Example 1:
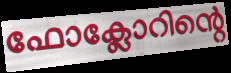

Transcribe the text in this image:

ഫോക്ലോറിന്റെ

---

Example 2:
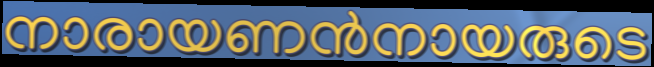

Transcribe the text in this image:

നാരായണൻനായരുടെ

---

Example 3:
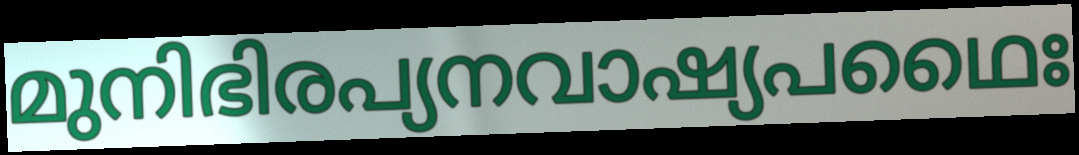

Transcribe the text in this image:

മുനിഭിരപ്യനവാഷ്യപഥൈഃ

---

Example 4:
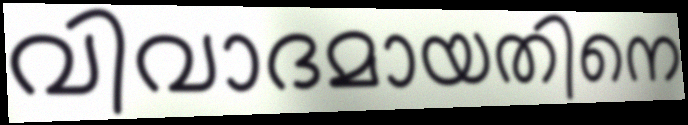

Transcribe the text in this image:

വിവാദമായതിനെ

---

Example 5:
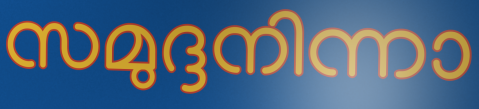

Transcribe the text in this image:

സമുദ്ദനിന്നാ